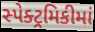
સ્પેક્ટ્રમિકીમાં